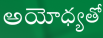
అయోధ్యతో